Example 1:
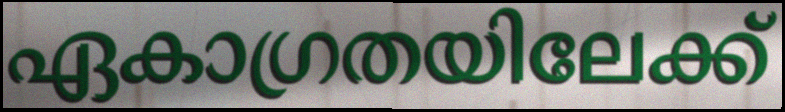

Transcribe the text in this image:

ഏകാഗ്രതയിലേക്ക്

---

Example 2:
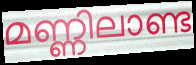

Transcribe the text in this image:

മണ്ണിലാണ്ട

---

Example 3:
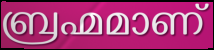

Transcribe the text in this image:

ബ്രഹ്മമാണ്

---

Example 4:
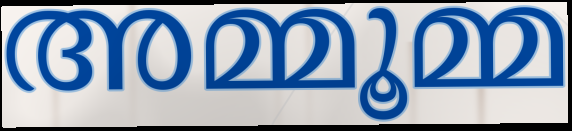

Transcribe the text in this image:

അമ്മൂമ്മ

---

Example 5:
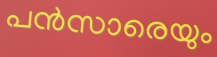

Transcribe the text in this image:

പൻസാരെയും